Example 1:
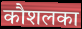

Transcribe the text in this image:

कौशलका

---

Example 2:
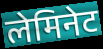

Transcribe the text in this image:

लेमिनेट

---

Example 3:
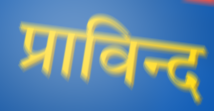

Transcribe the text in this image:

प्राविन्द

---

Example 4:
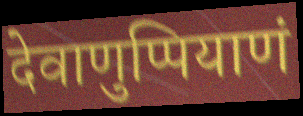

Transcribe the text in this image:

देवाणुप्पियाणं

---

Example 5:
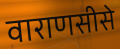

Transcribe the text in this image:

वाराणसीसे